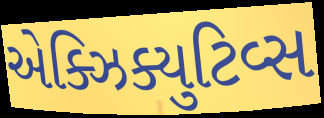
એક્ઝિક્યુટિવ્સ